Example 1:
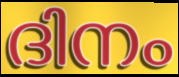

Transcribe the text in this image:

ദിനം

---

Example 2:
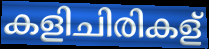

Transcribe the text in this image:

കളിചിരികള്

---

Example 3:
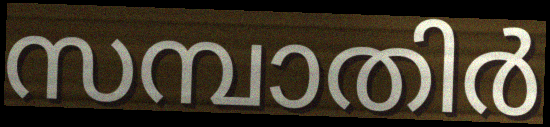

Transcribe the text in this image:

സമ്പാതിർ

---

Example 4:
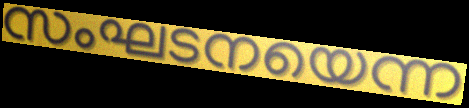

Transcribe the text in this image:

സംഘടനയെന്ന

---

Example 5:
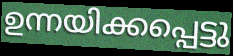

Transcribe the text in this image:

ഉന്നയിക്കപ്പെട്ടു